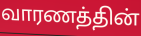
வாரணத்தின்